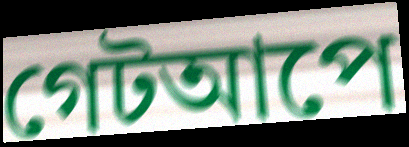
গেটআপে